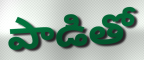
పాడితో